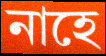
নাহে